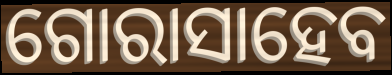
ଗୋରାସାହେବ